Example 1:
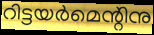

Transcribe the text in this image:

റിട്ടയർമെന്റിനു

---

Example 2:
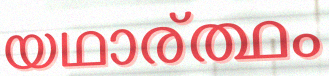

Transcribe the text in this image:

യഥാര്ത്ഥം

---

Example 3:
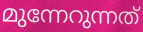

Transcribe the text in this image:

മുന്നേറുന്നത്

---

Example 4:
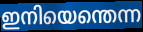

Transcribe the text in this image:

ഇനിയെന്തെന്ന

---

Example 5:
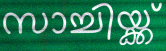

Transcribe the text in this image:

സാച്ചിയ്ക്ക്